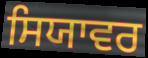
ਸਿਯਾਵਰ